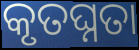
କୃତଘ୍ନତା